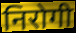
निरोगी